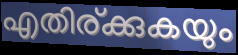
എതിര്ക്കുകയും